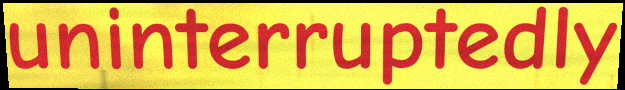
uninterruptedly